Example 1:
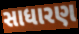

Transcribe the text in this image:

સાધારણ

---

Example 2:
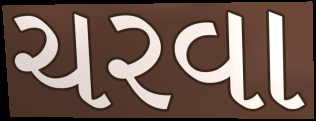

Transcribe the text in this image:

ચરવા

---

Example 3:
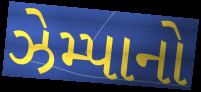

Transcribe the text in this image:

ઝેમ્પાનો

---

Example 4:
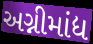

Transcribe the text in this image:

અગ્નીમાંદ્ય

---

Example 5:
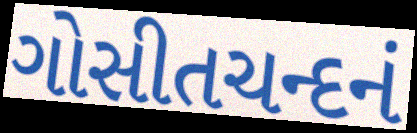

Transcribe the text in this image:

ગોસીતચન્દનં